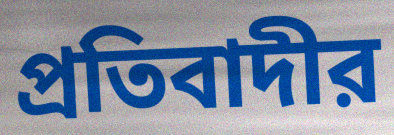
প্রতিবাদীর